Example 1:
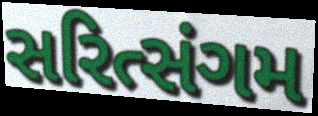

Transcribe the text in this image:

સરિત્સંગમ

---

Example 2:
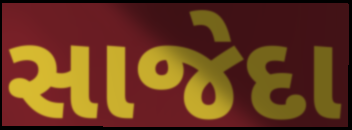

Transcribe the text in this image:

સાજેદા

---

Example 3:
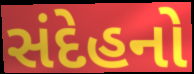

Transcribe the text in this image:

સંદેહનો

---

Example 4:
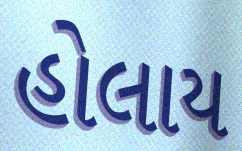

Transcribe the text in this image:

હોલાય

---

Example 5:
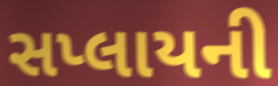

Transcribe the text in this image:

સપ્લાયની